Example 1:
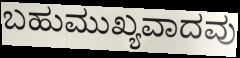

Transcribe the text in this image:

ಬಹುಮುಖ್ಯವಾದವು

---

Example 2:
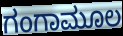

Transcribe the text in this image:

ಗಂಗಾಮೂಲ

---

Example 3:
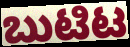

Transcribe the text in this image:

ಬುಟಿಟ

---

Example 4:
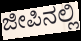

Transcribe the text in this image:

ಜೀಪಿನಲ್ಲಿ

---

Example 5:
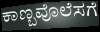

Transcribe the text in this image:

ಕಾಣ್ಬವೊಲೆಸಗೆ